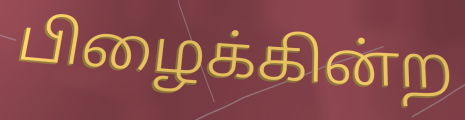
பிழைக்கின்ற